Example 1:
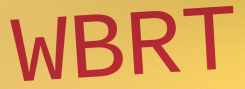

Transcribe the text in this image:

WBRT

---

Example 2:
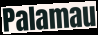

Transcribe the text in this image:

Palamau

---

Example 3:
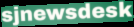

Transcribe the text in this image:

sjnewsdesk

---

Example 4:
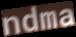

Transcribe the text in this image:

ndma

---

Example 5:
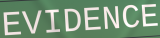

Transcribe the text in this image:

EVIDENCE